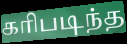
கரிபடிந்த